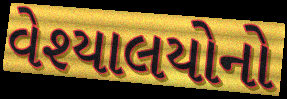
વેશ્યાલયોનો